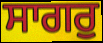
ਸਾਗਰੁ